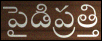
పైడిప్రత్తి